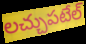
లచ్చుపటేల్